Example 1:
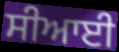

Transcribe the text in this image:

ਸੀਆਈ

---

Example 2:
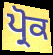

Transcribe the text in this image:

ਪ੍ਰੋਕ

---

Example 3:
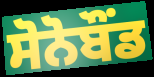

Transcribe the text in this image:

ਸੋਨੋਬੌਂਡ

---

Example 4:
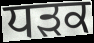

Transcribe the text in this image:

ਧੜਕ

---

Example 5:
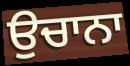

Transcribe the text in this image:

ਉਚਾਨਾ